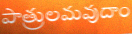
పాత్రులమవుదాం